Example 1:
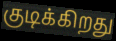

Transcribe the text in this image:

குடிக்கிறது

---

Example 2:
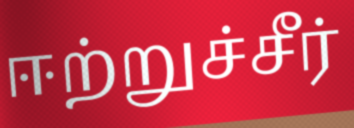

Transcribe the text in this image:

ஈற்றுச்சீர்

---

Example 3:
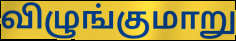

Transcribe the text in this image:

விழுங்குமாறு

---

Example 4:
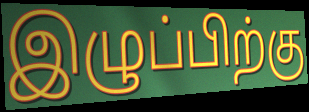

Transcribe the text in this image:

இழுப்பிற்கு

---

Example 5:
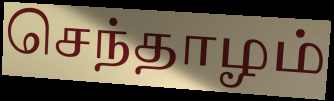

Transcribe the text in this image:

செந்தாழம்